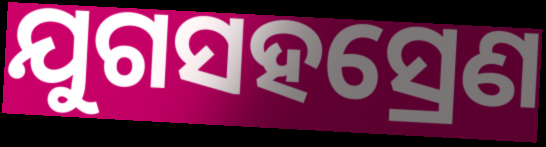
ଯୁଗସହସ୍ରେଣ